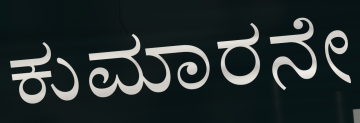
ಕುಮಾರನೇ